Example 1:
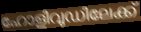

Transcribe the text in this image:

ഹോളിവുഡിലേക്ക്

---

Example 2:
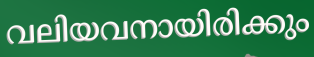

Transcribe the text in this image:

വലിയവനായിരിക്കും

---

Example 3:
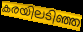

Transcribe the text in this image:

കരയിലടിഞ്ഞ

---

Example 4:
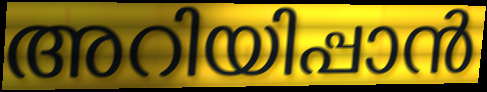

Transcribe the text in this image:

അറിയിപ്പാൻ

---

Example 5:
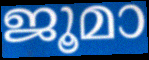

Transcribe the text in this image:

ജൂമാ